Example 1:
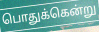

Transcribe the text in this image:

பொதுக்கென்று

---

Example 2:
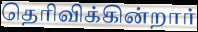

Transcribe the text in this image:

தெரிவிக்கின்றார்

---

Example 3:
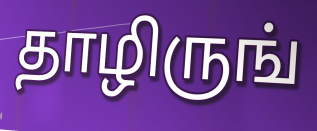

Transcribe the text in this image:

தாழிருங்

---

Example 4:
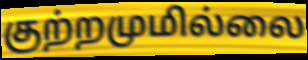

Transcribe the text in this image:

குற்றமுமில்லை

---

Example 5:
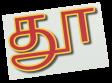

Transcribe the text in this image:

தூ